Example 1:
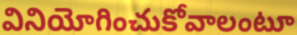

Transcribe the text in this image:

వినియోగించుకోవాలంటూ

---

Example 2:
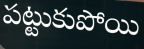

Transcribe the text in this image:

పట్టుకుపోయి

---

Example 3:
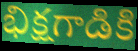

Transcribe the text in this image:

భిక్షగాడికి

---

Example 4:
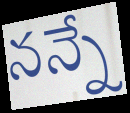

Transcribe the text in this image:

నన్నే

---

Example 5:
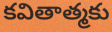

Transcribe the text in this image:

కవితాత్మకు